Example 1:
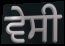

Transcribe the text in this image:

ਵੇਸੀ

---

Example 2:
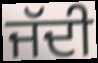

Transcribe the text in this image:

ਜੱਦੀ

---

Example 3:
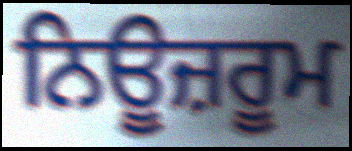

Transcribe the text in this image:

ਨਿਊਜ਼ਰੂਮ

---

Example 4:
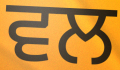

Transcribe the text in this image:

ਵਲ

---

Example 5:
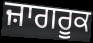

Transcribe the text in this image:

ਜ਼ਾਗਰੂਕ